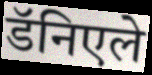
डॅनिएले